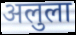
अलुला